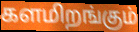
களமிறங்கும்